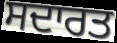
ਸਦਾਰਤ